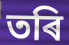
তৰি